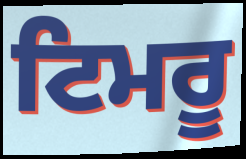
ਟਿਮਰੂ